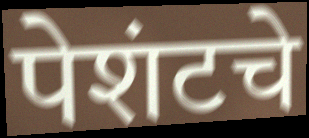
पेशंटचे